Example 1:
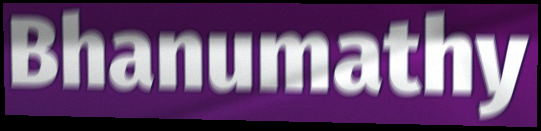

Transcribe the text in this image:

Bhanumathy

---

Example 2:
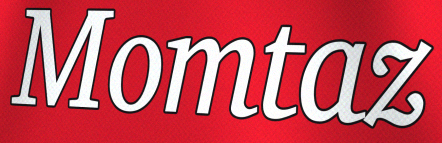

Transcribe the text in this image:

Momtaz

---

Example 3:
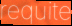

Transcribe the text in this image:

requite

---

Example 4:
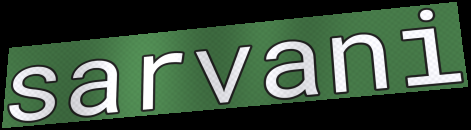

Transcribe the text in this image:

sarvani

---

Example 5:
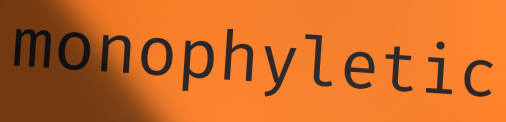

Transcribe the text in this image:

monophyletic